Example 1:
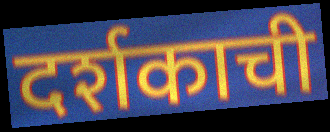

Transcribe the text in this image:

दर्शकाची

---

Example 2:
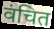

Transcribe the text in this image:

वंचित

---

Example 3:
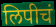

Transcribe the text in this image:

लिपीचं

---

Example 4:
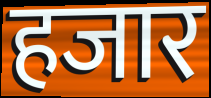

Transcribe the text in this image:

हजार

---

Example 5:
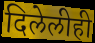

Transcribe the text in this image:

दिलेलीही